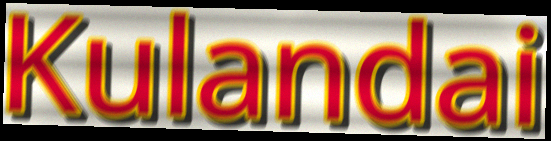
Kulandai